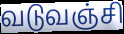
வடுவஞ்சி